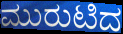
ಮುರುಟಿದ